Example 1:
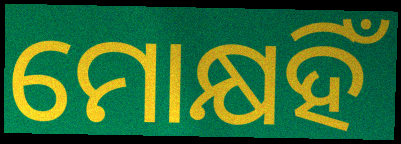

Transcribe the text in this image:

ମୋକ୍ଷହିଁ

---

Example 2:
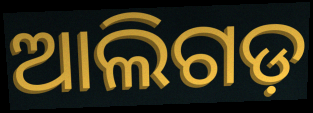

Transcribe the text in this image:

ଆଲିଗଡ଼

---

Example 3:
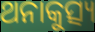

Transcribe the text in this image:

ଥନାକୁତ୍ସ୍ୟ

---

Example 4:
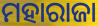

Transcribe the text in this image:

ମହାରାଜା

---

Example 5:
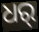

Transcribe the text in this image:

ଧର୍